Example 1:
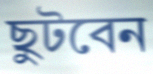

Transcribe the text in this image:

ছুটবেন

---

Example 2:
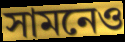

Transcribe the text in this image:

সামনেও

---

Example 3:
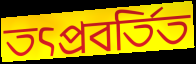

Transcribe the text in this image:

তৎপ্রবর্তিত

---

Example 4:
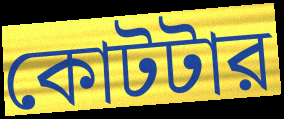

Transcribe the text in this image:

কোটটার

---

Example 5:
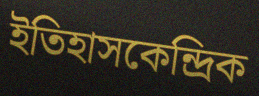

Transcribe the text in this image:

ইতিহাসকেন্দ্রিক